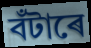
বঁটাৰে